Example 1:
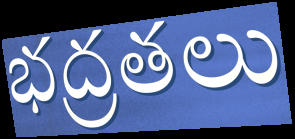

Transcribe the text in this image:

భద్రతలు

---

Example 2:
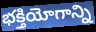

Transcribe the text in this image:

భక్తియోగాన్ని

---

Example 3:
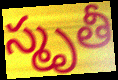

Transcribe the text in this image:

స్మృతీ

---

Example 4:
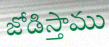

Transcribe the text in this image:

జోడిస్తాము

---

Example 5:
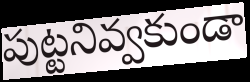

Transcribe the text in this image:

పుట్టనివ్వకుండా